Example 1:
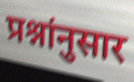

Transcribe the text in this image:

प्रश्नांनुसार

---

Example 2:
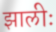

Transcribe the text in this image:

झालीः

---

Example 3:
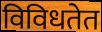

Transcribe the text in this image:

विविधतेत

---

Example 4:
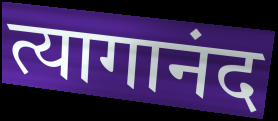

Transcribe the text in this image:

त्यागानंद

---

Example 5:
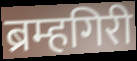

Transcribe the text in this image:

ब्रम्हगिरी